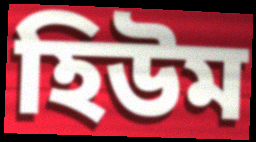
হিউম